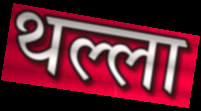
थल्ला